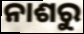
ନାଶରୁ